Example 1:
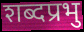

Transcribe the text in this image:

शब्दप्रभु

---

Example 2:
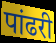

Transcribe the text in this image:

पांढरी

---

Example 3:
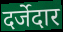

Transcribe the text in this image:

दर्जेदार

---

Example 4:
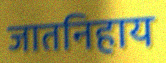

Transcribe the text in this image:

जातनिहाय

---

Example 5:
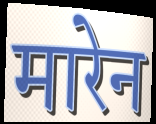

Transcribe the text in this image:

मारेन